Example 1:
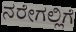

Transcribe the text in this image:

ನರೇಗಲ್ಲಿಗೆ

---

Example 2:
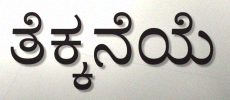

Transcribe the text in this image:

ತೆಕ್ಕನೆಯೆ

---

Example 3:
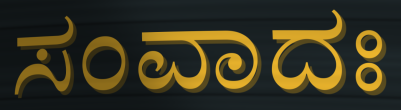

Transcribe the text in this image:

ಸಂವಾದಃ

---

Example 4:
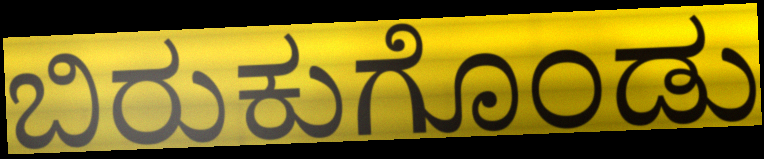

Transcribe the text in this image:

ಬಿರುಕುಗೊಂಡು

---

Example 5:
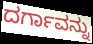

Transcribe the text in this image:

ದರ್ಗಾವನ್ನು